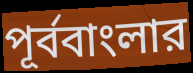
পূর্ববাংলার